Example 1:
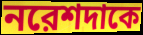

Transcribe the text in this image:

নরেশদাকে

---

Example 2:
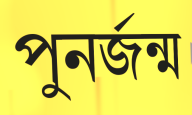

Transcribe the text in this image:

পুনর্জন্ম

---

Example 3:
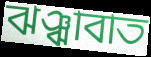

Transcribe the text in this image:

ঝঞ্ঝাবাত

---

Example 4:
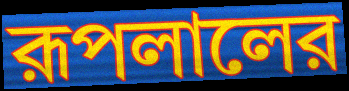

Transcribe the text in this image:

রূপলালের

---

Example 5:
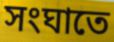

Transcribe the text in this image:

সংঘাতে